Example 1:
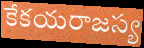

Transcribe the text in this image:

కేకయరాజస్య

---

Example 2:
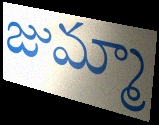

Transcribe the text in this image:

జుమ్మా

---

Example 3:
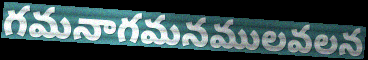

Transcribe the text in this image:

గమనాగమనములవలన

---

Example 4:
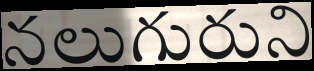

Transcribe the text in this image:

నలుగురుని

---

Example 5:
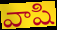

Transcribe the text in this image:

వాషి